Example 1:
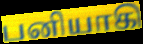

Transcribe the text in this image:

பனியாகி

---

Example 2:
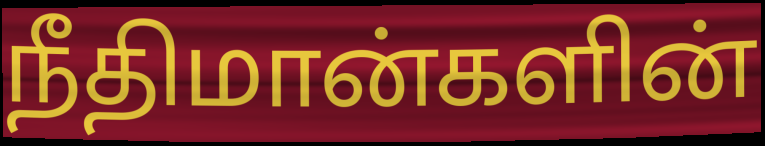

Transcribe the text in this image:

நீதிமான்களின்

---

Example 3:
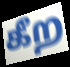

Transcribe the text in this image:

கீற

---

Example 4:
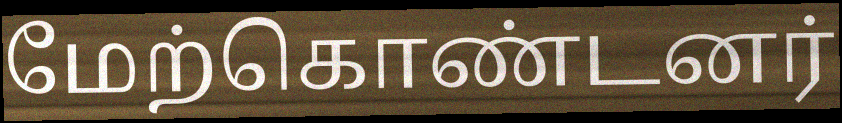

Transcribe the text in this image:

மேற்கொண்டனர்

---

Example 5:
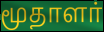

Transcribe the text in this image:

மூதாளர்